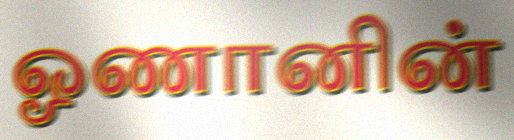
ஓணானின்